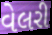
વેલરી